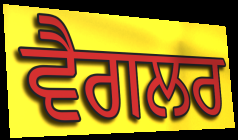
ਵੈਗਲਰ